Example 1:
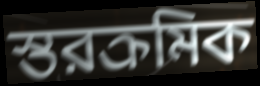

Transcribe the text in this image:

স্তরক্রমিক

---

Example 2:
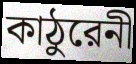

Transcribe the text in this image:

কাঠুরেনী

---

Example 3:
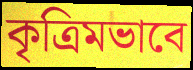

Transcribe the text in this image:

কৃত্রিমভাবে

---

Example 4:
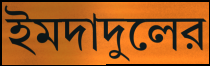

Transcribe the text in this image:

ইমদাদুলের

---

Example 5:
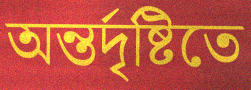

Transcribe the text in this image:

অন্তর্দৃষ্টিতে